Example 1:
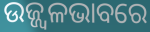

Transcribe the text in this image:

ଉଜ୍ଜ୍ୱଳଭାବରେ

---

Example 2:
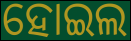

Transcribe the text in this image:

ହୋଇଲ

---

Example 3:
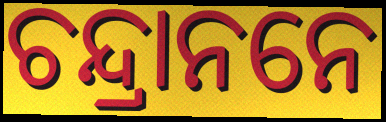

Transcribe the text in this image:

ଚନ୍ଦ୍ରାନନେ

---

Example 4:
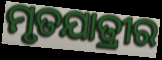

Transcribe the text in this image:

ମୃତଯାତ୍ରୀର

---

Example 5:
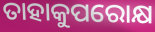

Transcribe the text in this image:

ତାହାକୁପରୋକ୍ଷ